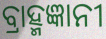
ବ୍ରାହ୍ମଜ୍ଞାନୀ